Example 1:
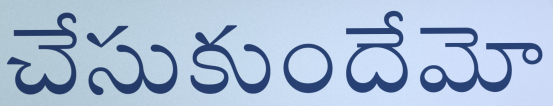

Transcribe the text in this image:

చేసుకుందేమో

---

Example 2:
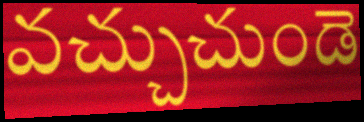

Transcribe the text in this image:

వచ్చుచుండె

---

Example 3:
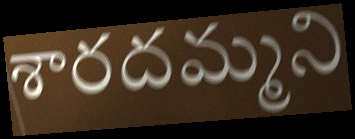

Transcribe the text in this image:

శారదమ్మని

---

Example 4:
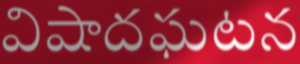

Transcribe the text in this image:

విషాదఘటన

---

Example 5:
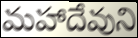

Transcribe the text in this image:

మహాదేవుని